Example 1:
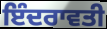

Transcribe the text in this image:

ਇੰਦਰਾਵਤੀ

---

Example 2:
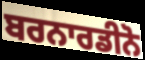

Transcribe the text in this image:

ਬਰਨਾਰਡੀਨੋ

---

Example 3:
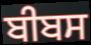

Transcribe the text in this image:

ਬੀਬਸ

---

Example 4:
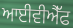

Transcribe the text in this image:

ਆਈਵੀਐੱਫ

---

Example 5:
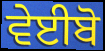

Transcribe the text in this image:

ਵੇਈਬੋ